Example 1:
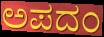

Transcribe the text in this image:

ಅಪದಂ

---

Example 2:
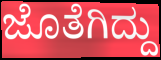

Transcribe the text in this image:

ಜೊತೆಗಿದ್ದು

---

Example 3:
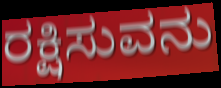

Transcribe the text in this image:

ರಕ್ಷಿಸುವನು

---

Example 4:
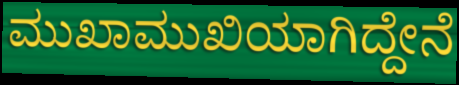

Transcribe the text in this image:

ಮುಖಾಮುಖಿಯಾಗಿದ್ದೇನೆ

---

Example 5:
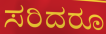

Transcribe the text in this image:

ಸರಿದರೂ